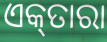
ଏକ୍‌ତାରା